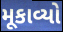
મૂકાવ્યો